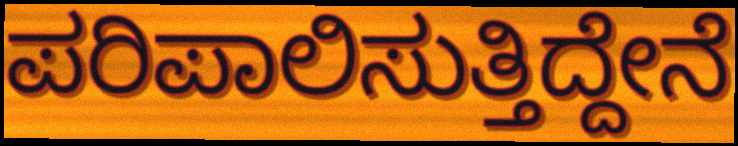
ಪರಿಪಾಲಿಸುತ್ತಿದ್ದೇನೆ